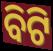
ବିଟି